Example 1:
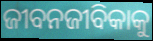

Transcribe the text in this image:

ଜୀବନଜୀବିକାକୁ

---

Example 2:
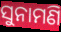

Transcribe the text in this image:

ସୁନାମଣି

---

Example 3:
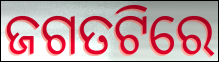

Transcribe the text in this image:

ଜଗତଟିରେ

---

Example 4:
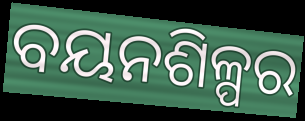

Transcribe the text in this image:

ବୟନଶିଳ୍ପର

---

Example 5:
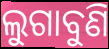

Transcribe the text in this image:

ଲୁଗାବୁଣି